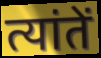
त्यांतें